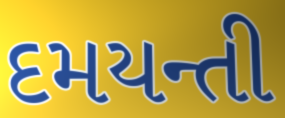
દમયન્તી